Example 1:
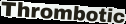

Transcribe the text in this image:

Thrombotic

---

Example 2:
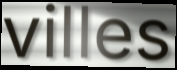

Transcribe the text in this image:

villes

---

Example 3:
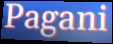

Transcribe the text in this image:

Pagani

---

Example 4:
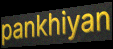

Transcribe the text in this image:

pankhiyan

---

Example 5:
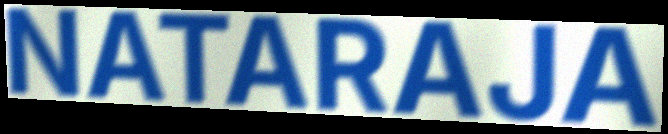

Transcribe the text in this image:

NATARAJA